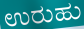
ಉರುಹು